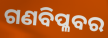
ଗଣବିପ୍ଳବର